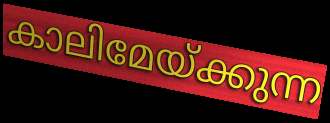
കാലിമേയ്ക്കുന്ന